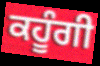
ਕਹੂੰਗੀ